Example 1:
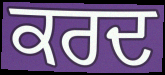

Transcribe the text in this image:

ਕਰਦ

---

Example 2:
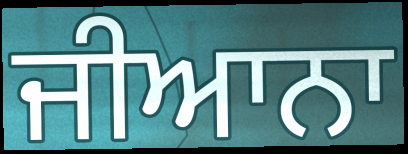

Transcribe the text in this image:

ਜੀਆਨਾ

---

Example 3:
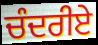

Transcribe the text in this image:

ਚੰਦਰੀਏ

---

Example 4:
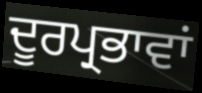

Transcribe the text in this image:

ਦੂਰਪ੍ਰਭਾਵਾਂ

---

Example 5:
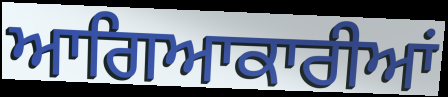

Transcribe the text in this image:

ਆਗਿਆਕਾਰੀਆਂ